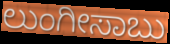
ಲುಂಗೀಸಾಬು